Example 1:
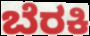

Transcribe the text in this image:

ಬೆರಕಿ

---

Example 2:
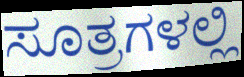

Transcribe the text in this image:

ಸೂತ್ರಗಳಲ್ಲಿ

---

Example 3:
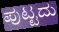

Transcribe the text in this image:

ಪುಟ್ಟದು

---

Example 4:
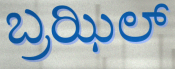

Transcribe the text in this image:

ಬ್ರಝಿಲ್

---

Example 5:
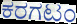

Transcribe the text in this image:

ಕರಗಟಂ